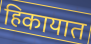
हिकायात